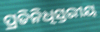
ପ୍ରତିନିଧିସ୍ତରୀୟ